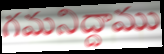
గమనిద్దాము